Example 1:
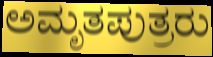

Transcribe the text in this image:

ಅಮೃತಪುತ್ರರು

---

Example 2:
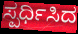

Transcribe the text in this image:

ಸ್ಪರ್ಧಿಸಿದ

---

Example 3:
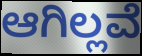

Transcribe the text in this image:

ಆಗಿಲ್ಲವೆ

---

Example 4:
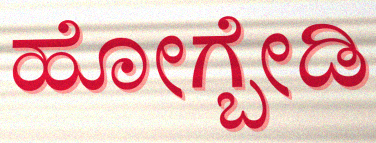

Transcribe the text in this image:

ಹೋಗ್ಬೇಡಿ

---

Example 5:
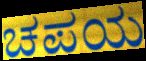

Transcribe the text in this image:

ಚಪಯ